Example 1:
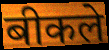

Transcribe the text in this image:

बीकले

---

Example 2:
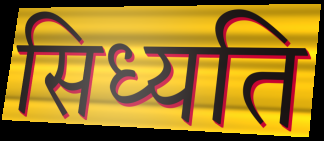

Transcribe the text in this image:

सिध्यति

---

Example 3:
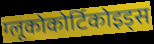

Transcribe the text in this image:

ग्लूकोकोर्टिकोइड्स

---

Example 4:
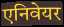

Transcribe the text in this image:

एनिवेयर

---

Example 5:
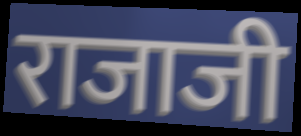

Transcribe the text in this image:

राजाजी